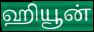
ஹியூன்